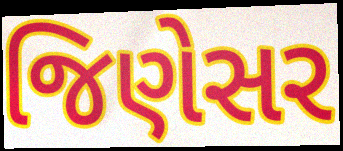
જિણેસર